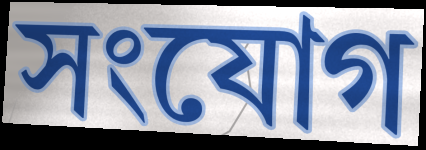
সংযোগ